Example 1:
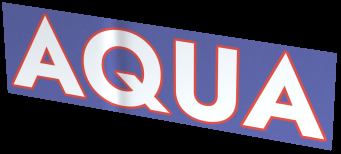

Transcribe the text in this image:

AQUA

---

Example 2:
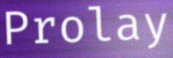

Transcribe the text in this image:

Prolay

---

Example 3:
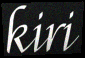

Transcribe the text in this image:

kiri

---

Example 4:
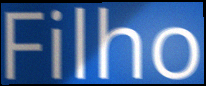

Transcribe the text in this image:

Filho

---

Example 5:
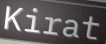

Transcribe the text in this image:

Kirat